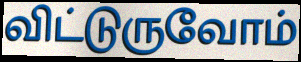
விட்டுருவோம்